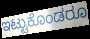
ಇಟ್ಟುಕೊಂಡರೂ